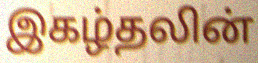
இகழ்தலின்